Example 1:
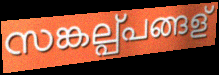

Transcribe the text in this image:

സങ്കല്പ്പങ്ങള്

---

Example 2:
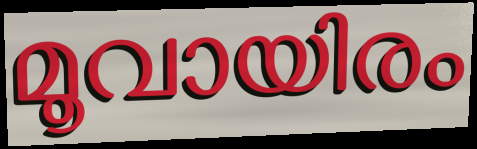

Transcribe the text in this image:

മൂവായിരം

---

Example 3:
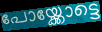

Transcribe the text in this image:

പോയ്ക്കോട്ടെ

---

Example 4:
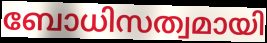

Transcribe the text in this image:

ബോധിസത്വമായി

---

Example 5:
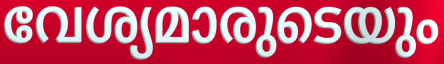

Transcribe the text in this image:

വേശ്യമാരുടെയും